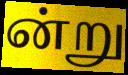
ன்று